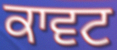
ਕਾਵਟ